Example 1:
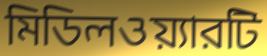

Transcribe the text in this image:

মিডিলওয়্যারটি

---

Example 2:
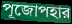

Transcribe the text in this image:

পূজোপহার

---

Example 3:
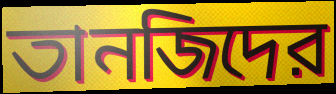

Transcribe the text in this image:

তানজিদের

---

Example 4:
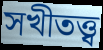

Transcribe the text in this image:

সখীতত্ত্ব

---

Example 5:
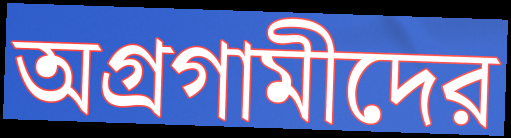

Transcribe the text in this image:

অগ্রগামীদের